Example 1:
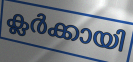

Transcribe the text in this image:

ക്ലർക്കായി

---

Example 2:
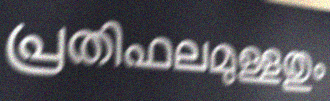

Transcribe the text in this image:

പ്രതിഫലമുള്ളതും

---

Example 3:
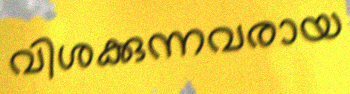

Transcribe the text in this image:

വിശക്കുന്നവരായ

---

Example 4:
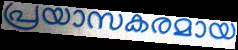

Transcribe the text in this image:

പ്രയാസകരമായ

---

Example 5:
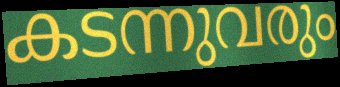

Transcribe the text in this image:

കടന്നുവരും